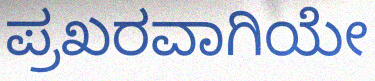
ಪ್ರಖರವಾಗಿಯೇ